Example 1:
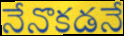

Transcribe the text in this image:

నేనొకడనే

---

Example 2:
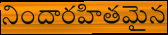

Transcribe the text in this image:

నిందారహితమైన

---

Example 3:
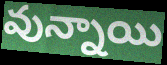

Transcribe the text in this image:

వున్నాయి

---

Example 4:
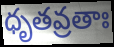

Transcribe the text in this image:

ధృతవ్రతాః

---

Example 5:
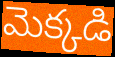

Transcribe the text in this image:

మెక్కడి